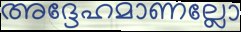
അദ്ദേഹമാണല്ലോ